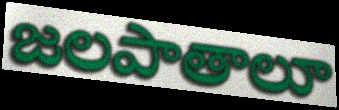
జలపాతాలూ